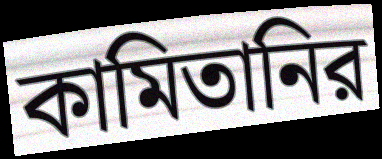
কামিতানির